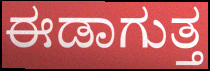
ಈಡಾಗುತ್ತ